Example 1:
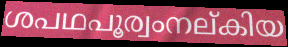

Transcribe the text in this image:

ശപഥപൂര്വംനല്കിയ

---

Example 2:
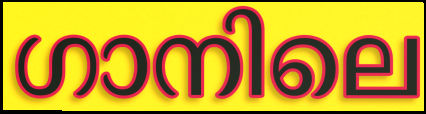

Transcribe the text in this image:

ഗാനിലെ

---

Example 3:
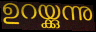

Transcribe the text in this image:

ഉറയ്ക്കുന്നു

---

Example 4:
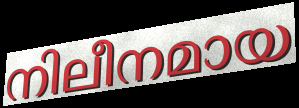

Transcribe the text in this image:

നിലീനമായ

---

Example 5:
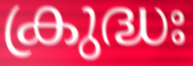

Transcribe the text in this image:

ക്രുദ്ധഃ